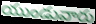
యుండువారు